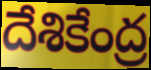
దేశికేంద్ర